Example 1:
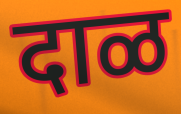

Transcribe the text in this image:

दाळ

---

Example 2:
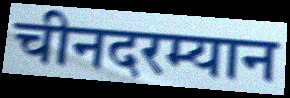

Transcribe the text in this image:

चीनदरम्यान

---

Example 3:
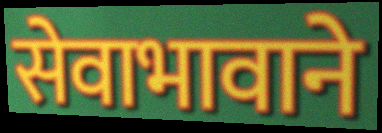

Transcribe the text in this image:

सेवाभावाने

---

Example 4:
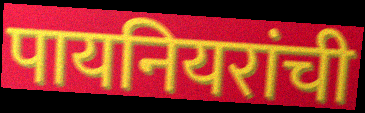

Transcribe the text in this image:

पायनियरांची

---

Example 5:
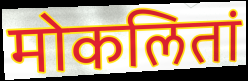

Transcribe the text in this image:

मोकलितां